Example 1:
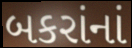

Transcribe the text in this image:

બકરાંનાં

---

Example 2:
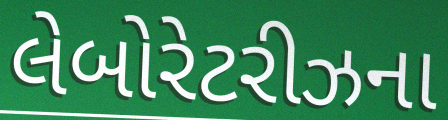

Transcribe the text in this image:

લેબોરેટરીઝના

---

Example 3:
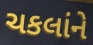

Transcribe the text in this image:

ચકલાંને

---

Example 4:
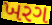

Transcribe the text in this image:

ખરગ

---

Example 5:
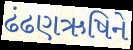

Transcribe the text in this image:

ઢંઢણઋષિને